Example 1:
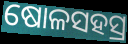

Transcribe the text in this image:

ଷୋଳସହସ୍ର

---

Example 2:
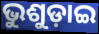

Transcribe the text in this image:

ଭୁଶୁଡ଼ାଇ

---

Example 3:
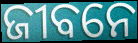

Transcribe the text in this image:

ଜୀବନେ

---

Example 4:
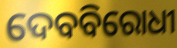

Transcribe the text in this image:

ଦେବବିରୋଧୀ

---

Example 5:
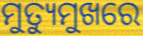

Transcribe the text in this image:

ମୁତ୍ୟୁମୁଖରେ